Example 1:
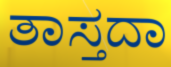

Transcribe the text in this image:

ತಾಸ್ತದಾ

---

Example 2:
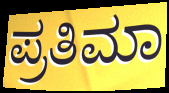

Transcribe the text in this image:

ಪ್ರತಿಮಾ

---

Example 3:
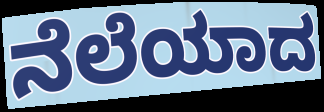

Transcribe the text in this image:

ನೆಲೆಯಾದ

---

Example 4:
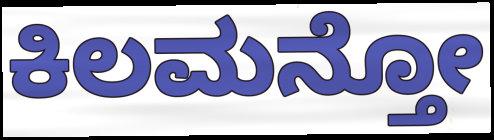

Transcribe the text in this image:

ಕಿಲಮನ್ತೋ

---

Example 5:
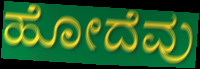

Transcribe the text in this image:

ಹೋದೆವು